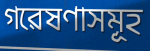
গৱেষণাসমূহ